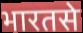
भारतसे